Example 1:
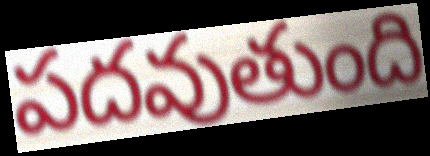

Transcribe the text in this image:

పదవుతుంది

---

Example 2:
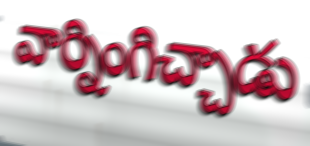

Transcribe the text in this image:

వార్నింగిచ్చాడు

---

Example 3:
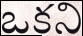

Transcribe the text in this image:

ఒకని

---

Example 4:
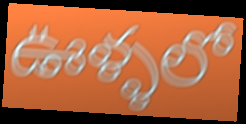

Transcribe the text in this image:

ఊళ్ళలో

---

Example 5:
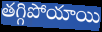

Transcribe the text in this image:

తగ్గిపోయాయి